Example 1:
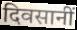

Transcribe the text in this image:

दिवसानीं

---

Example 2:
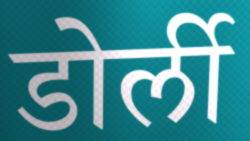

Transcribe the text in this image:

डोर्ली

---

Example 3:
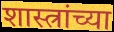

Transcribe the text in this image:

शास्त्रांच्या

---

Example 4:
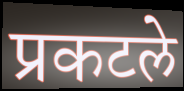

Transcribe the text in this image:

प्रकटले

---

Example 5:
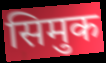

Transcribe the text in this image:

सिमुक